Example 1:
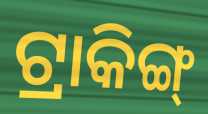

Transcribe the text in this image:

ଟ୍ରାକିଙ୍ଗ୍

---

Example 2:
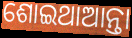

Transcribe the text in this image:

ଶୋଇଥାଆନ୍ତା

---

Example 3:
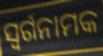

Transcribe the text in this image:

ସ୍ଵର୍ଗନାମକ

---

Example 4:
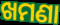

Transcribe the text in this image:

ଖମଣା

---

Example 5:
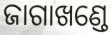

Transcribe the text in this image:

ଜାଗାଖଣ୍ଡେ